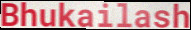
Bhukailash